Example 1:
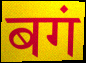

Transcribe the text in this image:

बगं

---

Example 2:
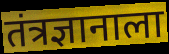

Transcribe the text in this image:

तंत्रज्ञानाला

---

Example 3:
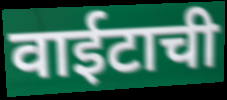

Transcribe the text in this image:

वाईटाची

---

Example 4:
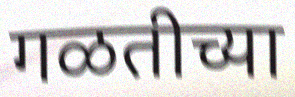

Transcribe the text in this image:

गळतीच्या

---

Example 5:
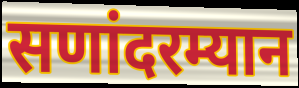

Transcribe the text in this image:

सणांदरम्यान